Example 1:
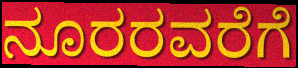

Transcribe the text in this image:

ನೂರರವರೆಗೆ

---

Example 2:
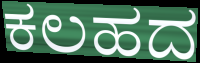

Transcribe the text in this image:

ಕಲಹದ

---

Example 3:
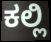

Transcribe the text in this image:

ಕಲ್ಲಿ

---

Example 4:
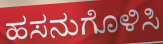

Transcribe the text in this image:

ಹಸನುಗೊಳಿಸಿ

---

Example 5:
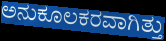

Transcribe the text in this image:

ಅನುಕೂಲಕರವಾಗಿತ್ತು